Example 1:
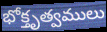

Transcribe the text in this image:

భోక్తృత్వములు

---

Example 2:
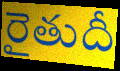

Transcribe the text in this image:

రైతుదీ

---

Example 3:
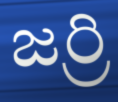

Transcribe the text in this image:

జర్రి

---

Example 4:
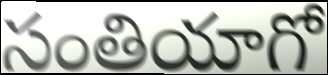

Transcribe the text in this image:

సంతియాగో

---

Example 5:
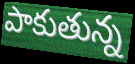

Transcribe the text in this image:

పాకుతున్న